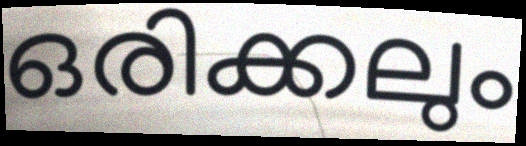
ഒരിക്കലും